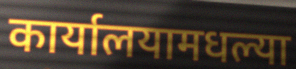
कार्यालयामधल्या